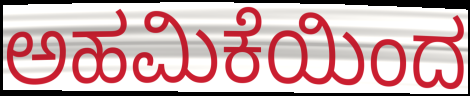
ಅಹಮಿಕೆಯಿಂದ